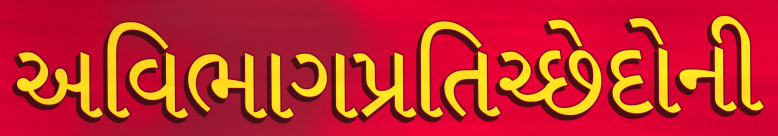
અવિભાગપ્રતિચ્છેદોની